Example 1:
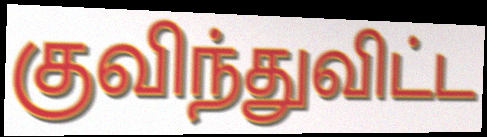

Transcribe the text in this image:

குவிந்துவிட்ட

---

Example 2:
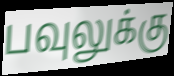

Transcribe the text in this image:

பவுலுக்கு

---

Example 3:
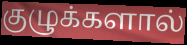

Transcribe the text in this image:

குழுக்களால்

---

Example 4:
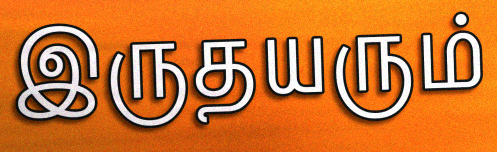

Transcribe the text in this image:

இருதயரும்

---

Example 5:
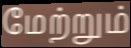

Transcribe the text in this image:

மேற்றும்